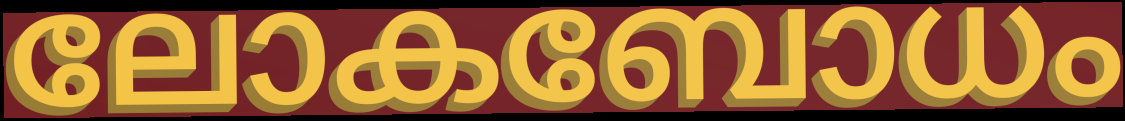
ലോകബോധം